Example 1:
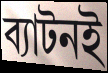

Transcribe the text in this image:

ব্যাটনই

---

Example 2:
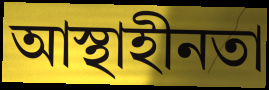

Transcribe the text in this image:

আস্থাহীনতা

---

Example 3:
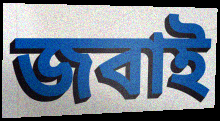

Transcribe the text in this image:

জবাই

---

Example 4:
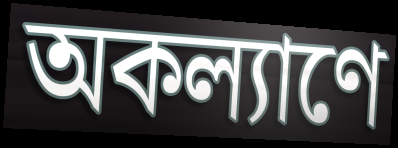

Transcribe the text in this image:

অকল্যাণে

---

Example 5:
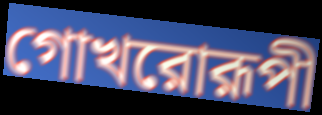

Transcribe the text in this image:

গোখরোরূপী